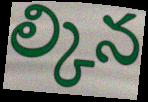
ల్కిన